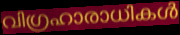
വിഗ്രഹാരാധികൾ